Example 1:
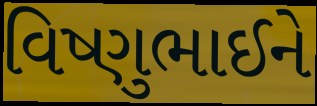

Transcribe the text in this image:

વિષ્ણુભાઈને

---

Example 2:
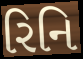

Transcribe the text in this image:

રિનિ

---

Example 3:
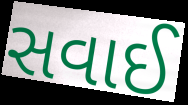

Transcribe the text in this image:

સવાઈ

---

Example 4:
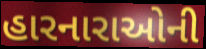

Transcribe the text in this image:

હારનારાઓની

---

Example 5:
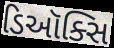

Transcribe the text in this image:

ડિઑક્સિ